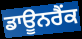
ਡਾਊਨਰੈਂਕ